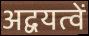
अद्वयत्वें